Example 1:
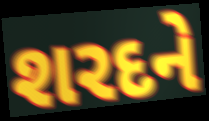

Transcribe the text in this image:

શરદને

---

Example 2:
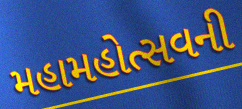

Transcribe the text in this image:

મહામહોત્સવની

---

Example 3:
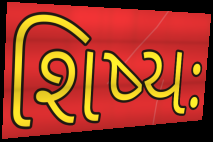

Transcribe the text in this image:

શિષ્યઃ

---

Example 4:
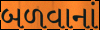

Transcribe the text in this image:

બળવાનાં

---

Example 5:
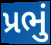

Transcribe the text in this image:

પ્રભું